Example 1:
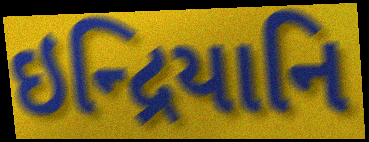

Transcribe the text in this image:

ઇન્દ્રિયાનિ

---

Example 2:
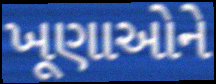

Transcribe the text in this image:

ખૂણાઓને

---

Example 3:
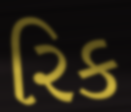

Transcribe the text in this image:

રિક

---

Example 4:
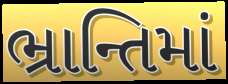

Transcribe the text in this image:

ભ્રાન્તિમાં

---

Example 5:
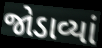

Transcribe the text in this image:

જોડાવ્યાં